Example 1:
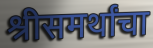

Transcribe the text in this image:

श्रीसमर्थांचा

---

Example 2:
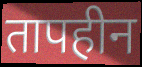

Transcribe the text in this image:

तापहीन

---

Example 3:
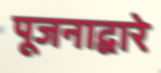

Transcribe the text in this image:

पूजनाद्वारे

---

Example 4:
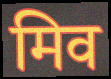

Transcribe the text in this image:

मिव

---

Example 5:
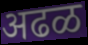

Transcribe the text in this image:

अढळ